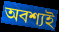
অবশ্যই